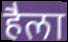
हैला